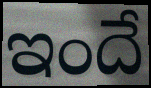
ఇందే